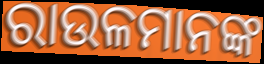
ରାଉଳମାନଙ୍କ